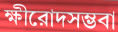
ক্ষীরোদসম্ভবা